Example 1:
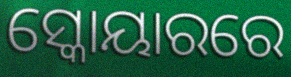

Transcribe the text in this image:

ସ୍କୋୟାରରେ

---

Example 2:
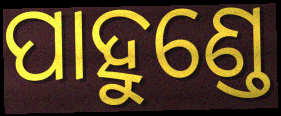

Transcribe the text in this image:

ପାହୁଣ୍ଡେ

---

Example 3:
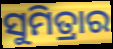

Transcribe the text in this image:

ସୁମିତ୍ରାର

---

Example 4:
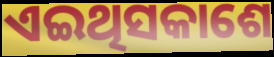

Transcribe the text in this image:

ଏଇଥିସକାଶେ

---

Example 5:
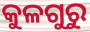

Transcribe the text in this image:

କୁଳଗୁରୁ